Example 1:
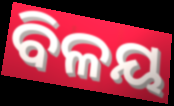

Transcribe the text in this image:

ବିଳୟ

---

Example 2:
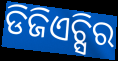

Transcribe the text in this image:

ଡିଜିଏଚ୍ସିର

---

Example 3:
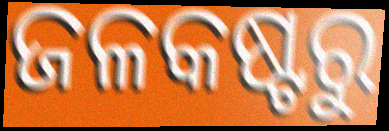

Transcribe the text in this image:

ଜଳକଷ୍ଟରୁ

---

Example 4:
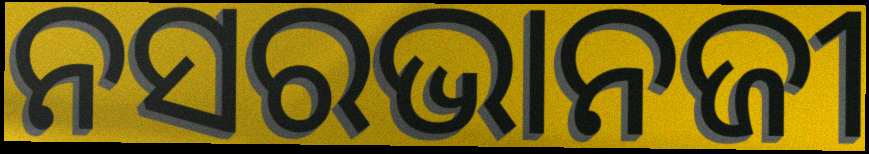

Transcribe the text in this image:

ନସରଭାନଜୀ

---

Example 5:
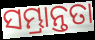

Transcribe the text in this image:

ସମ୍ଭ୍ରାନ୍ତତା